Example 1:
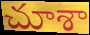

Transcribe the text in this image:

చూశా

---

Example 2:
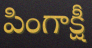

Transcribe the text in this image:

పింగాక్షీ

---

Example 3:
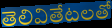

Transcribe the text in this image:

తెలివితేటలతో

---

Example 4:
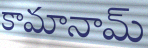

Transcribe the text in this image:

కామానామ్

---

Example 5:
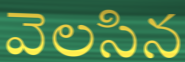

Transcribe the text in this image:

వెలసిన